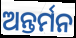
ଅନ୍ତର୍ମନ